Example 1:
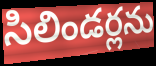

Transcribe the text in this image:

సిలిండర్లను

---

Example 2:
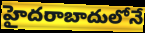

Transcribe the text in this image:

హైదరాబాదులోనే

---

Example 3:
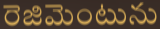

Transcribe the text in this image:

రెజిమెంటును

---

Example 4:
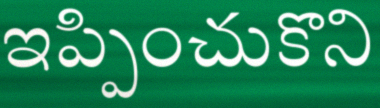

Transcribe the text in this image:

ఇప్పించుకొని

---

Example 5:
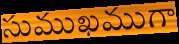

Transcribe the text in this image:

సుముఖముగా